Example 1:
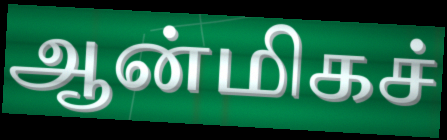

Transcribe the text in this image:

ஆன்மிகச்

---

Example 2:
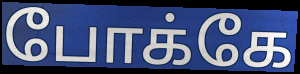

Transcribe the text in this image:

போக்கே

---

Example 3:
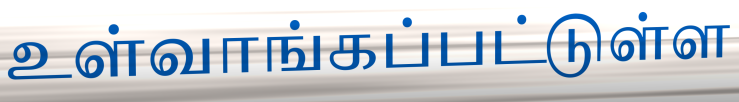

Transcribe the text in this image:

உள்வாங்கப்பட்டுள்ள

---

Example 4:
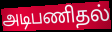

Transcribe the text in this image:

அடிபணிதல்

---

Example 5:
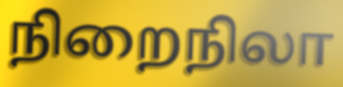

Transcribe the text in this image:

நிறைநிலா